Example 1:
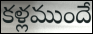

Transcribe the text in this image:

కళ్లముందే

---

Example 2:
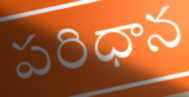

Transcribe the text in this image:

పరిధాన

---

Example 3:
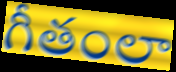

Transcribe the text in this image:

గీతంలా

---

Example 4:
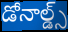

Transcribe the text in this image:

డోనాల్డ్స్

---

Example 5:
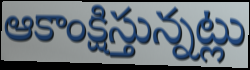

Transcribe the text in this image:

ఆకాంక్షిస్తున్నట్లు